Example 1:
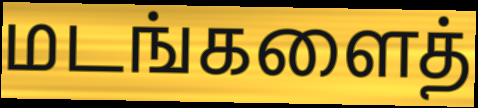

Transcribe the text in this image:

மடங்களைத்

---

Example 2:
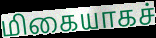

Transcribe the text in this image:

மிகையாகச்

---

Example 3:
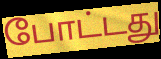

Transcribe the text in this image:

போட்டது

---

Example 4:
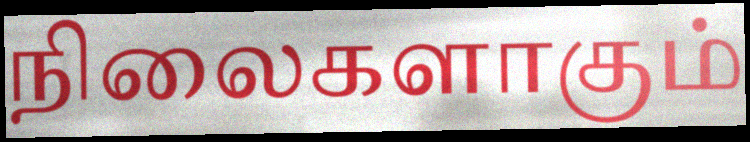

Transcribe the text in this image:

நிலைகளாகும்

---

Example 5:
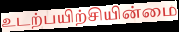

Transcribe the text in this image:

உடற்பயிற்சியின்மை